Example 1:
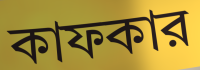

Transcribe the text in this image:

কাফকার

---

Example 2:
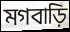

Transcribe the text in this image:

মগবাড়ি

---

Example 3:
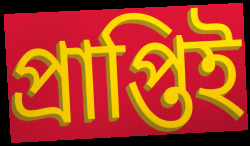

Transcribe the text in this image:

প্রাপ্তিই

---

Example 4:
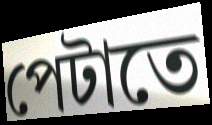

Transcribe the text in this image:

পেটাতে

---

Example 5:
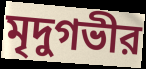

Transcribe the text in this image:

মৃদুগভীর